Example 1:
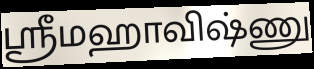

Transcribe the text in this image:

ஸ்ரீமஹாவிஷ்ணு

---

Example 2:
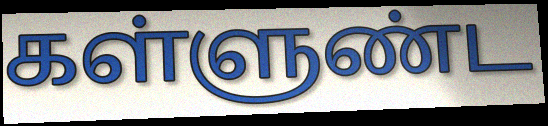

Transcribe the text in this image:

கள்ளுண்ட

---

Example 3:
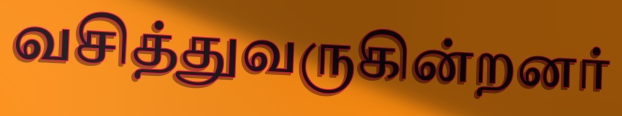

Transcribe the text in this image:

வசித்துவருகின்றனர்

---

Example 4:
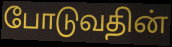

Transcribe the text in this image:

போடுவதின்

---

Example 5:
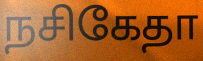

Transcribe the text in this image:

நசிகேதா